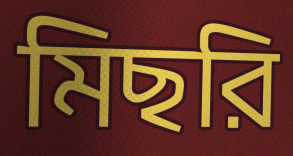
মিছরি